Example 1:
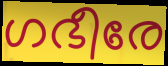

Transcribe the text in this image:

ഗഭീരേ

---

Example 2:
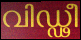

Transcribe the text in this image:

വിഡ്ഢീ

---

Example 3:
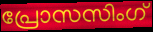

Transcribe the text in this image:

പ്രോസസിംഗ്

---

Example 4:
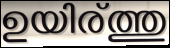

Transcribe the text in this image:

ഉയിര്ത്തു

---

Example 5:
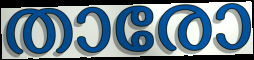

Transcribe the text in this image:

താരോ